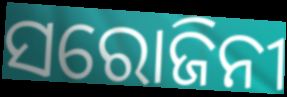
ସରୋଜିନୀ